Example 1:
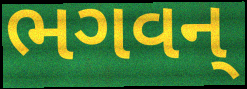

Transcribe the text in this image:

ભગવન્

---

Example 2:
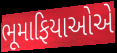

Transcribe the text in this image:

ભૂમાફિયાઓએ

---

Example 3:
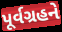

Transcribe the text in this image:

પૂર્વગ્રહને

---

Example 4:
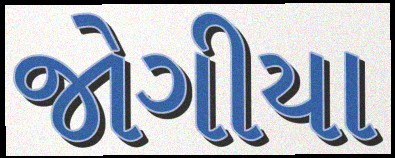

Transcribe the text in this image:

જોગીયા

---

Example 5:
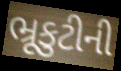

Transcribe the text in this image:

ભ્રૂકુટીની